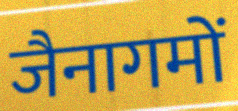
जैनागमों